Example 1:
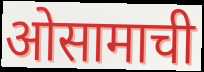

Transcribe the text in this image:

ओसामाची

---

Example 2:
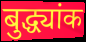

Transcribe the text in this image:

बुद्ध्यांक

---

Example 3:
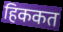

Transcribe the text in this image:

हिककत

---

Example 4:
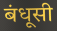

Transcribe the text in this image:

बंधूसी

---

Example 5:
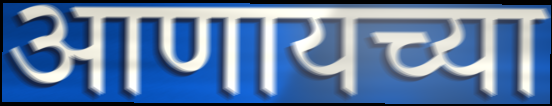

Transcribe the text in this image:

आणायच्या